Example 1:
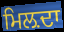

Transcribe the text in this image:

ਮਿਲ਼ਦਾ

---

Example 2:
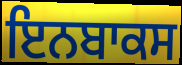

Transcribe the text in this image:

ਇਨਬਾਕਸ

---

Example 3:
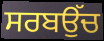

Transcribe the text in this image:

ਸਰਬਉੱਚ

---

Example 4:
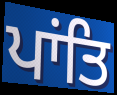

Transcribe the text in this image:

ਪਾਂਤਿ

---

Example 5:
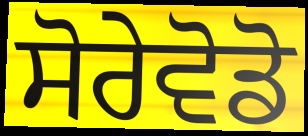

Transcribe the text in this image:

ਸੋਰੇਵੋਡੋ